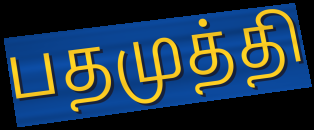
பதமுத்தி